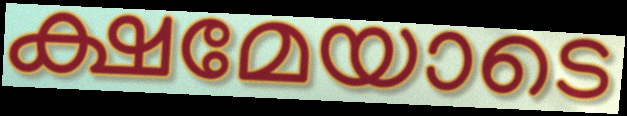
ക്ഷമേയാടെ